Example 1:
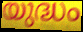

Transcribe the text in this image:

യുദ്ധം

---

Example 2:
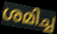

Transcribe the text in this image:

ശമിച്ച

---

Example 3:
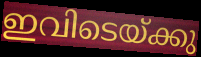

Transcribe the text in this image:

ഇവിടെയ്ക്കു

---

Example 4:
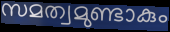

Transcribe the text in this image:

സമത്വമുണ്ടാകും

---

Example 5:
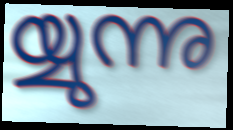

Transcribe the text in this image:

യ്യുന്നു